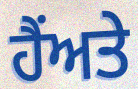
ਹੈਂਅਤੇ